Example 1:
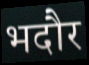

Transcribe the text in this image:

भदौर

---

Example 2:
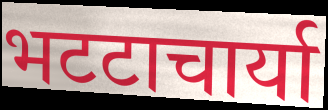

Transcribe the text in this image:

भटटाचार्या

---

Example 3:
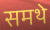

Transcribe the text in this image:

समथे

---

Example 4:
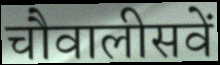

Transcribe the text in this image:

चौवालीसवें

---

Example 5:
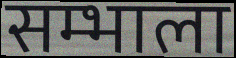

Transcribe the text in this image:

सम्भाला